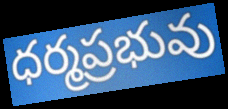
ధర్మప్రభువు